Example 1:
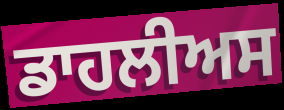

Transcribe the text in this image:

ਡਾਹਲੀਅਸ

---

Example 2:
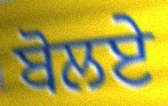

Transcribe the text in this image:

ਬੋਲਏ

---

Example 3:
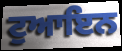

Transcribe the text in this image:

ਟੁਆਇਨ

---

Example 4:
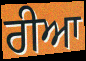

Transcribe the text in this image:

ਰੀਆ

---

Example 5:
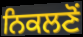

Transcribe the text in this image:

ਨਿਕਲਣੋਂ